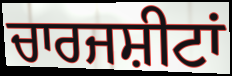
ਚਾਰਜਸ਼ੀਟਾਂ